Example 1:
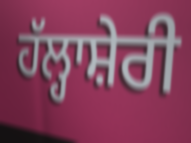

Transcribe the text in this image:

ਹੱਲ੍ਹਾਸ਼ੇਰੀ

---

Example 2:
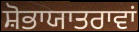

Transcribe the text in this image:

ਸ਼ੋਭਾਯਾਤਰਾਵਾਂ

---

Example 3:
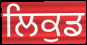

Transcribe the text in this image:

ਲਿਕੁਡ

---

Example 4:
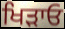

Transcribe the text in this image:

ਖਿੜਾਓ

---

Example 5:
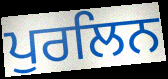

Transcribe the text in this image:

ਪੁਰਲਿਨ